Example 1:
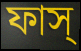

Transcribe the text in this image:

ফাস্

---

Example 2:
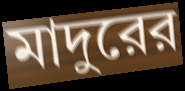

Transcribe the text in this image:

মাদুরের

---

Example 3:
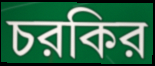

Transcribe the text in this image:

চরকির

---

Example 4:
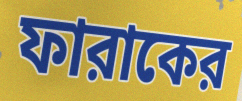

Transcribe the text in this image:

ফারাকের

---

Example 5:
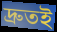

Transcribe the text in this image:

দ্রুতই